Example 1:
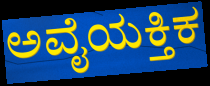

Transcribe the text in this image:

ಅವೈಯಕ್ತಿಕ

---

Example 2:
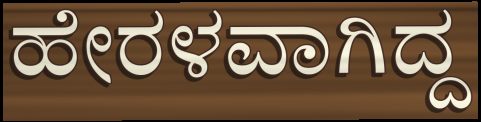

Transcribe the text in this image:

ಹೇರಳವಾಗಿದ್ದ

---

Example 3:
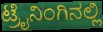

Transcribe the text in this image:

ಟ್ರೈನಿಂಗಿನಲ್ಲಿ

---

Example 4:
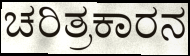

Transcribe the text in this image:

ಚರಿತ್ರಕಾರನ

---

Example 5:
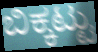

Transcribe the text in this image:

ಬಿಕ್ಕಟ್ಟು